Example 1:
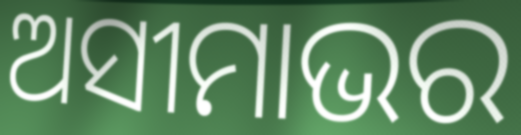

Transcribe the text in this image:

ଅସୀମାଭର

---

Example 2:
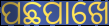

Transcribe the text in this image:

ପଛପାଖେ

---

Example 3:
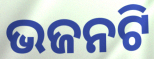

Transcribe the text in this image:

ଭଜନଟି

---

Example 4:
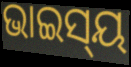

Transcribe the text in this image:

ଭାଇସ୍‌ୟ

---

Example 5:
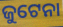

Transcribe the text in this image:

ଜୁଟେନା